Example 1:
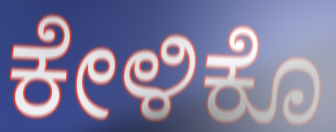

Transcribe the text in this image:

ಕೇಳಿಕೊ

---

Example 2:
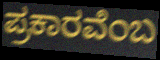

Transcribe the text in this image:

ಪ್ರಕಾರವೆಂಬ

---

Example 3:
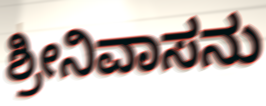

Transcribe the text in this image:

ಶ್ರೀನಿವಾಸನು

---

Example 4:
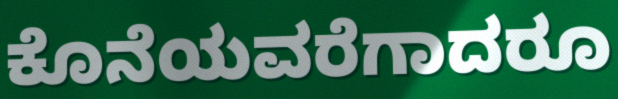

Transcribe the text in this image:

ಕೊನೆಯವರೆಗಾದರೂ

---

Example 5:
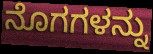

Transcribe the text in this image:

ನೊಗಗಳನ್ನು